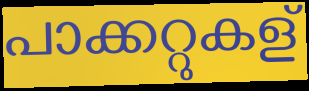
പാക്കറ്റുകള്